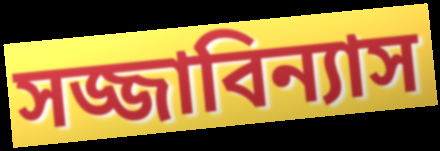
সজ্জাবিন্যাস